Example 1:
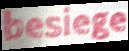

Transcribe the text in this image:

besiege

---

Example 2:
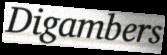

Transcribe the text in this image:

Digambers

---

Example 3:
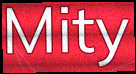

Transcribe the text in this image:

Mity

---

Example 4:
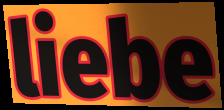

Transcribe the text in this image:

liebe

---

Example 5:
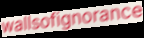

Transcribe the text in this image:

wallsofignorance